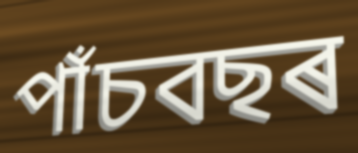
পাঁচবছৰ